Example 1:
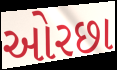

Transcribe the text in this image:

ઓરછા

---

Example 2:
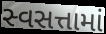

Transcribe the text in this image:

સ્વસત્તામાં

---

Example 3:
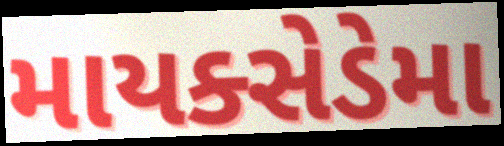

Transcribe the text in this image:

માયક્સેડેમા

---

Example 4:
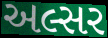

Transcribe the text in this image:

અલ્સર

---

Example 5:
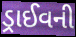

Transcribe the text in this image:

ડ્રાઈવની